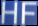
HF